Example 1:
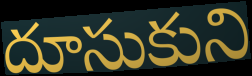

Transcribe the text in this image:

దూసుకుని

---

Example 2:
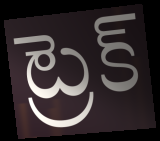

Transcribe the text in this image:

ట్రెక్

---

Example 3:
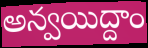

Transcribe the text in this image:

అన్వయిద్దాం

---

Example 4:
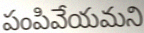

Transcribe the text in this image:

పంపివేయమని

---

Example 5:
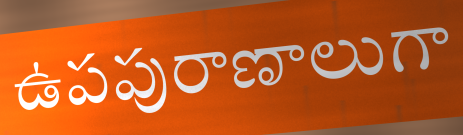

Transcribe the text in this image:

ఉపపురాణాలుగా